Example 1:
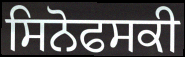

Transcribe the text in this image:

ਸਿਨੋਫਸਕੀ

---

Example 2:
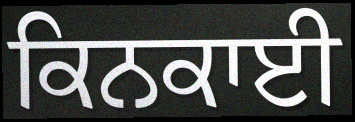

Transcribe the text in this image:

ਕਿਨਕਾਈ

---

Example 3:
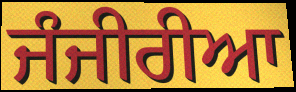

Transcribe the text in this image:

ਜੰਜੀਰੀਆ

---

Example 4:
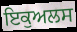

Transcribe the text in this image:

ਇਕੁਅਲਸ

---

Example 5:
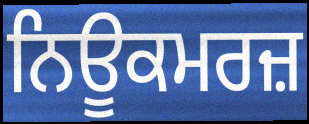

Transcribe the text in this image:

ਨਿਊਕਮਰਜ਼